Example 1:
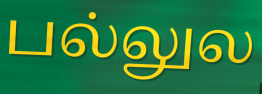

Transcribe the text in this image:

பல்லுல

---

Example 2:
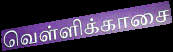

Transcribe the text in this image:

வெள்ளிக்காசை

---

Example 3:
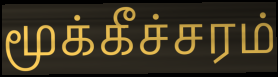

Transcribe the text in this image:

மூக்கீச்சரம்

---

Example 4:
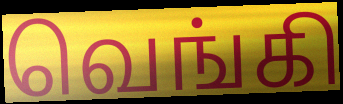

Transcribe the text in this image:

வெங்கி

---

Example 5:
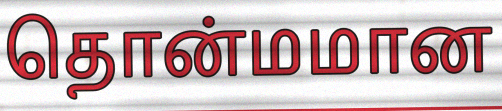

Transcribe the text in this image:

தொன்மமான